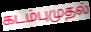
கடம்புமுதல்